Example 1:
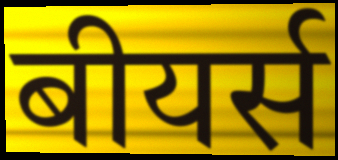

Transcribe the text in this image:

बीयर्स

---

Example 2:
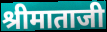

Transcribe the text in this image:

श्रीमाताजी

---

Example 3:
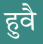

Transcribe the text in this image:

हुवै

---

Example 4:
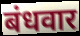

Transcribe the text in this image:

बंधवार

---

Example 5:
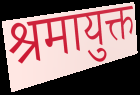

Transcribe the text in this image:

श्रमायुक्त